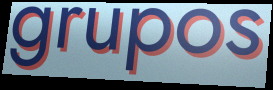
grupos